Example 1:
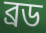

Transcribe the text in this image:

ব্রড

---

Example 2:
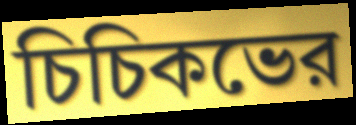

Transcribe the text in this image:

চিচিকভের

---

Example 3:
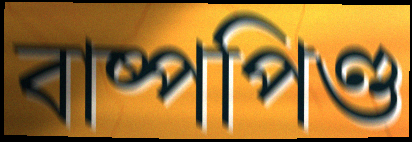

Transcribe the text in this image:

বাষ্পপিণ্ড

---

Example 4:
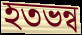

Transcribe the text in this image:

হতভন্ব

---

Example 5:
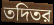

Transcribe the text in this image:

তদিতর